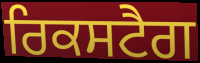
ਰਿਕਸਟੈਗ